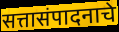
सत्तासंपादनाचे